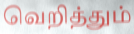
வெறித்தும்